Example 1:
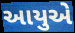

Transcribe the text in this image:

આયુએ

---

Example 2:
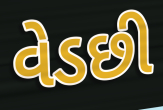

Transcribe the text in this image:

વેડછી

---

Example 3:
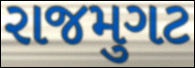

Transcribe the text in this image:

રાજમુગટ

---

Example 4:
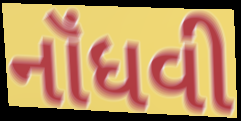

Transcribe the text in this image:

નૉંધવી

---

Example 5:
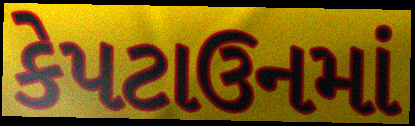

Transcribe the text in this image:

કેપટાઉનમાં